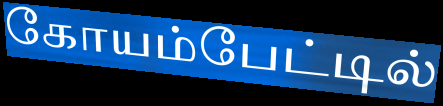
கோயம்பேட்டில்